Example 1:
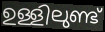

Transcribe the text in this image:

ഉള്ളിലുണ്ട്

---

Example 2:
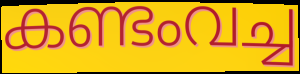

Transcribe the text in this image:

കണ്ടംവച്ച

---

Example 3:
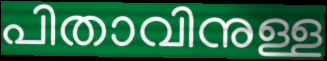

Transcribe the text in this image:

പിതാവിനുള്ള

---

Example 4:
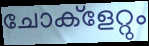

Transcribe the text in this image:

ചോക്ളേറ്റും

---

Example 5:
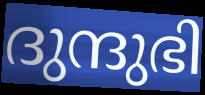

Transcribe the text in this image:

ദുന്ദുഭി